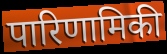
पारिणामिकी